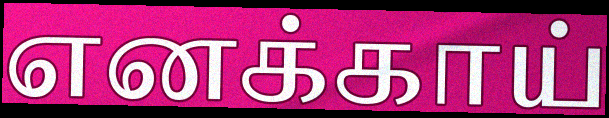
எனக்காய்